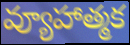
వ్యూహాత్మక